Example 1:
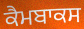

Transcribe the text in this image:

ਕੈਮਬਾਕਸ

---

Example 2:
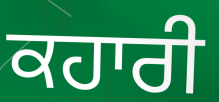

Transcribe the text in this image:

ਕਹਾਰੀ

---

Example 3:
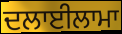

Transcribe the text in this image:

ਦਲਾਈਲਾਮਾ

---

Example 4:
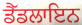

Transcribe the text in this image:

ਡੈੱਡਲਾਇਨ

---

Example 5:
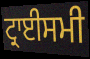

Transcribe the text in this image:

ਟ੍ਰਾਈਸਮੀ